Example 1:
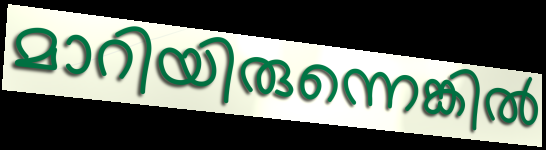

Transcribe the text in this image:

മാറിയിരുന്നെങ്കിൽ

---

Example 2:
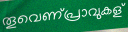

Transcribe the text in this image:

തൂവെണ്പ്രാവുകള്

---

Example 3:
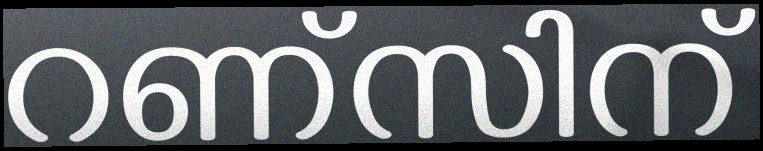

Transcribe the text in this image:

റണ്സിന്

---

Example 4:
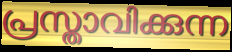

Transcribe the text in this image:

പ്രസ്താവിക്കുന്ന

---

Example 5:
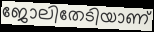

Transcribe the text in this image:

ജോലിതേടിയാണ്